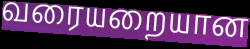
வரையறையான